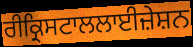
ਰੀਕ੍ਰਿਸਟਾਲਲਾਈਜ਼ੇਸ਼ਨ